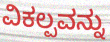
ವಿಕಲ್ಪವನ್ನು